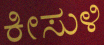
ಕೀಸುಳಿ